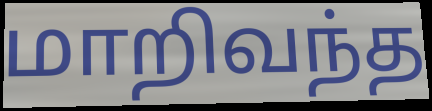
மாறிவந்த